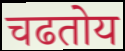
चढतोय